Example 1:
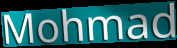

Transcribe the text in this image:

Mohmad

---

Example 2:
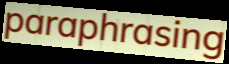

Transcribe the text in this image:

paraphrasing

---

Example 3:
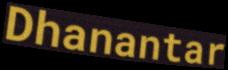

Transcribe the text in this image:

Dhanantar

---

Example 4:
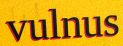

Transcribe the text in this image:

vulnus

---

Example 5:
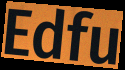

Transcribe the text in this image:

Edfu